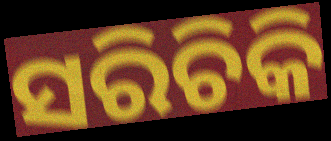
ସରିଚିକି